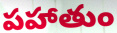
పహాతుం